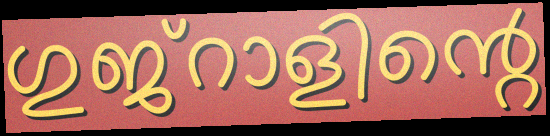
ഗുജ്റാളിന്റെ